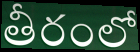
తీరంలో